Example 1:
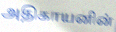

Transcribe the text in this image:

அதிகாயனின்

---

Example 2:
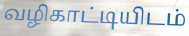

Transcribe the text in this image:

வழிகாட்டியிடம்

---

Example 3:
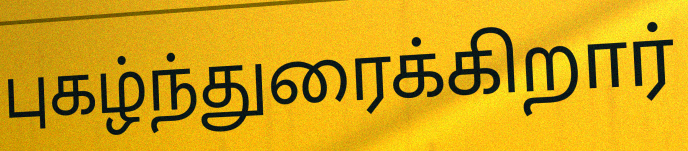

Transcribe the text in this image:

புகழ்ந்துரைக்கிறார்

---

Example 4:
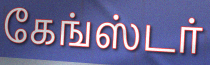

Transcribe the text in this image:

கேங்ஸ்டர்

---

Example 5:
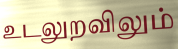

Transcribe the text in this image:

உடலுறவிலும்